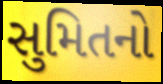
સુમિતનો